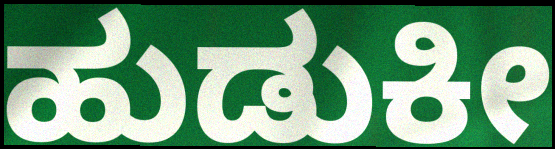
ಹುಡುಕೀ